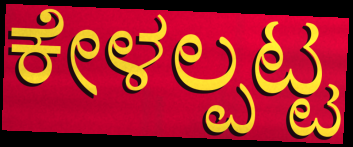
ಕೇಳಲ್ಪಟ್ಟ